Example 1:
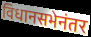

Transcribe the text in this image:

विधानसभेनंतर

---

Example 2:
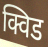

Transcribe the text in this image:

क्विड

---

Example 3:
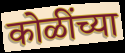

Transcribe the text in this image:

कोळींच्या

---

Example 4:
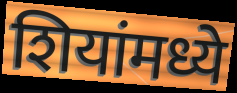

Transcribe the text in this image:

शियांमध्ये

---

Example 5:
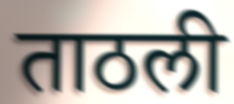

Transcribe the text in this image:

ताठली